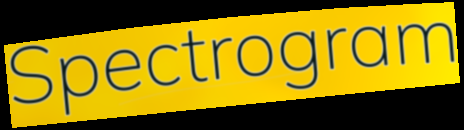
Spectrogram